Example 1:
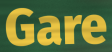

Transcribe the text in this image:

Gare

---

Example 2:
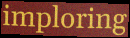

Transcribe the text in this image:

imploring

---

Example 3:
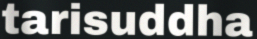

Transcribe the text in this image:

tarisuddha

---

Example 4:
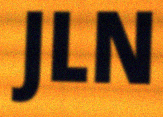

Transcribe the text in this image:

JLN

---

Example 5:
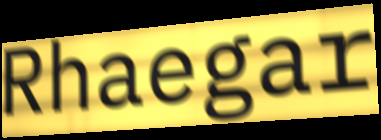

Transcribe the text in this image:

Rhaegar